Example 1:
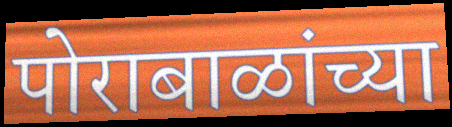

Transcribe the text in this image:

पोराबाळांच्या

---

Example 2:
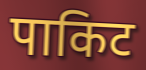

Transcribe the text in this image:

पाकिट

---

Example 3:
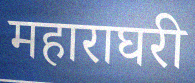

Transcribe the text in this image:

महाराघरी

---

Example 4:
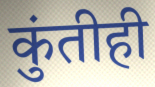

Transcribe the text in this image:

कुंतीही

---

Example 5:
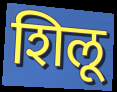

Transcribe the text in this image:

शिलू